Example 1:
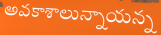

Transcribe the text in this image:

అవకాశాలున్నాయన్న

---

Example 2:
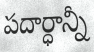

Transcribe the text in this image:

పదార్ధాన్నీ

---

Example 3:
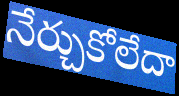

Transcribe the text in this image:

నేర్చుకోలేదా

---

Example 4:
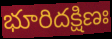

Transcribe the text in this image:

భూరిదక్షిణః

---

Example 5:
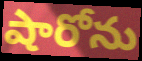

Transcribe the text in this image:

షారోను